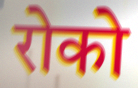
रोको